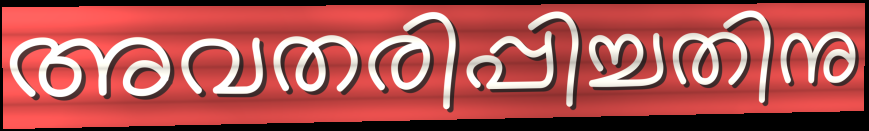
അവതരിപ്പിച്ചതിനു